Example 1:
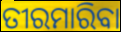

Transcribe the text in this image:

ତୀରମାରିବା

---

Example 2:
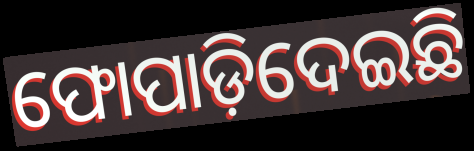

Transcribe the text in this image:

ଫୋପାଡ଼ିଦେଇଛି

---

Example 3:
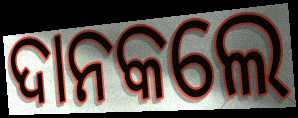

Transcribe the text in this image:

ଦାନକଲେ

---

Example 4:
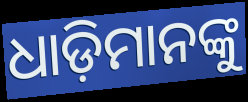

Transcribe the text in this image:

ଧାଡ଼ିମାନଙ୍କୁ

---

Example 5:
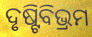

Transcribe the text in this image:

ଦୃଷ୍ଟିବିଭ୍ରମ